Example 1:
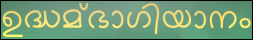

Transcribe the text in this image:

ഉദ്ധമ്ഭാഗിയാനം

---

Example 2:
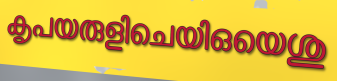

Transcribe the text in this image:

കൃപയരുളിചെയിഒയെശു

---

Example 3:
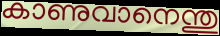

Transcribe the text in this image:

കാണുവാനെന്തു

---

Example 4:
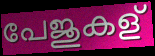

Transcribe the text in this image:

പേജുകള്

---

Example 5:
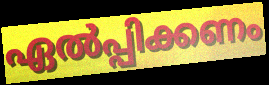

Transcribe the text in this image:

ഏൽപ്പിക്കണം